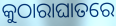
କୁଠାରାଘାତରେ